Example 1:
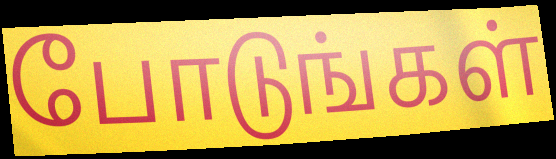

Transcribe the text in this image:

போடுங்கள்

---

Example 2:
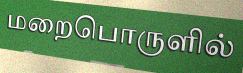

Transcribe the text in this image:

மறைபொருளில்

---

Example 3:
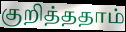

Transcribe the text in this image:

குறித்ததாம்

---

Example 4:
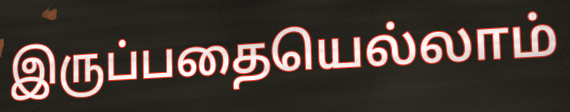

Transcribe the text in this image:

இருப்பதையெல்லாம்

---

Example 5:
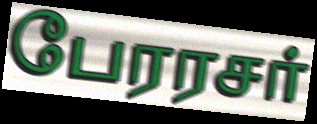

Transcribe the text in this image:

பேரரசர்